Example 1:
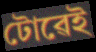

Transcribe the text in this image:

টোৱেই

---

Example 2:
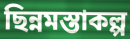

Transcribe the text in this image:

ছিন্নমস্তাকল্প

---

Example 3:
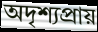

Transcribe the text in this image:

অদৃশ্যপ্ৰায়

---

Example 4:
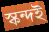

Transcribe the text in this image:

স্কন্দই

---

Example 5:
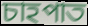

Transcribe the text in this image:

চাহপাত